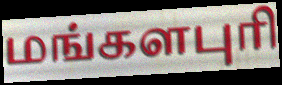
மங்களபுரி